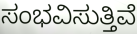
ಸಂಭವಿಸುತ್ತಿವೆ